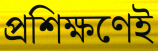
প্রশিক্ষণেই